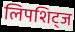
लिपशिट्ज